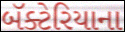
બૅક્ટેરિયાના